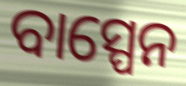
ବାସ୍ପେନ